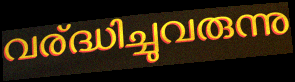
വര്ദ്ധിച്ചുവരുന്നു